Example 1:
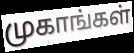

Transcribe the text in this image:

முகாங்கள்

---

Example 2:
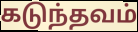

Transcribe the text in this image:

கடுந்தவம்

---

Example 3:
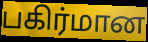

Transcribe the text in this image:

பகிர்மான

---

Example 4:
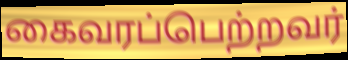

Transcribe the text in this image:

கைவரப்பெற்றவர்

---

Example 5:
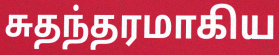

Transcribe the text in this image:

சுதந்தரமாகிய